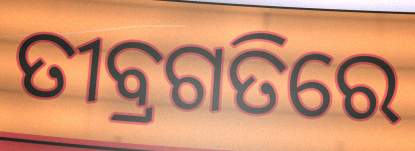
ତୀବ୍ରଗତିରେ